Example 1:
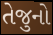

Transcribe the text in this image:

તેજુનો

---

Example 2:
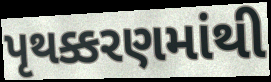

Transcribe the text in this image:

પૃથક્કરણમાંથી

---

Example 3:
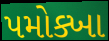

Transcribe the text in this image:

પમોક્ખા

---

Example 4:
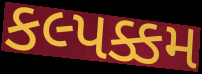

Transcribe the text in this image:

કલ્પક્કમ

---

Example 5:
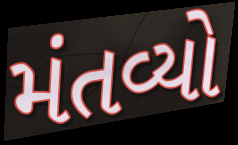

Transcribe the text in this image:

મંતવ્યો